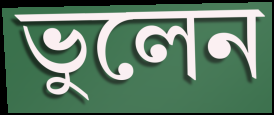
ভুলেন